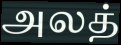
அலத்